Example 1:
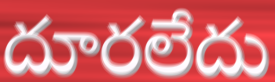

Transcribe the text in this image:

దూరలేదు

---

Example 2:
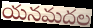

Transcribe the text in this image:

యనమదల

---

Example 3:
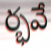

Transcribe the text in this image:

ర్భవే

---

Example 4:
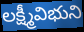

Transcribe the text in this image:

లక్ష్మీవిభుని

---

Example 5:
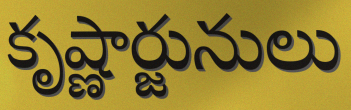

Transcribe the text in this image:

కృష్ణార్జునులు